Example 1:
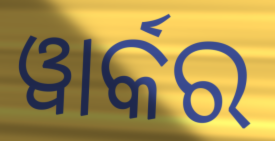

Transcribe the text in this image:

ୱାର୍କର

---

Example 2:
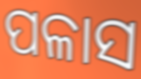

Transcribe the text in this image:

ପଳାସ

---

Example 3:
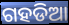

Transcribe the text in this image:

ଗହଡିଆ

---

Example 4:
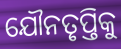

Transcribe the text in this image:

ଯୌନତୃପ୍ତିକୁ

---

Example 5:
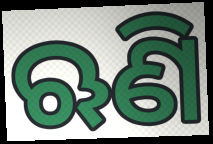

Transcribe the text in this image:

ଋଣି